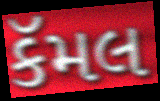
કૅમલ